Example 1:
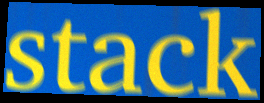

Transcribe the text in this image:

stack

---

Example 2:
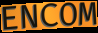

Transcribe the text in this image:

ENCOM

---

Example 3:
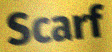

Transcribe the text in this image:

Scarf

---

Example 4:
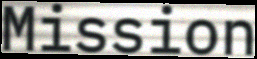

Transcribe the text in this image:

Mission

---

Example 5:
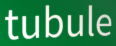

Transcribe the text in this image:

tubule